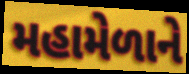
મહામેળાને